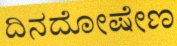
ದಿನದೋಷೇಣ